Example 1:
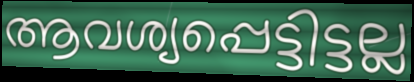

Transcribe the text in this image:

ആവശ്യപ്പെട്ടിട്ടല്ല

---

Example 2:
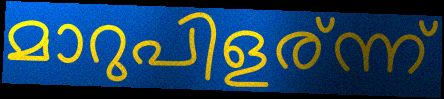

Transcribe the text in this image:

മാറുപിളര്ന്ന്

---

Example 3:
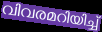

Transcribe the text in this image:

വിവരമറിയിച്ച്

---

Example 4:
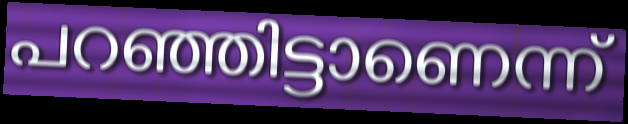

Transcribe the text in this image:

പറഞ്ഞിട്ടാണെന്ന്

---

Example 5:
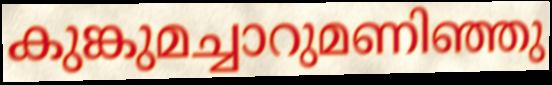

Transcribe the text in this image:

കുങ്കുമച്ചാറുമണിഞ്ഞു